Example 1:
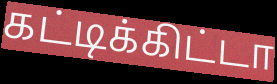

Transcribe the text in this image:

கட்டிக்கிட்டா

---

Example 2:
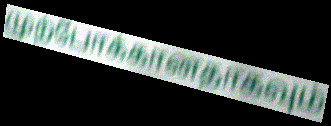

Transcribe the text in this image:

முற்போக்கானதாகவும்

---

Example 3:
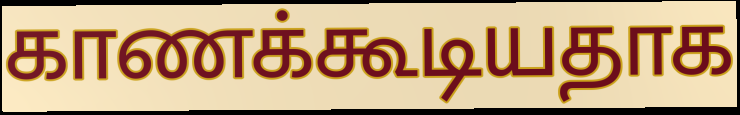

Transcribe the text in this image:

காணக்கூடியதாக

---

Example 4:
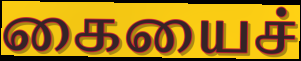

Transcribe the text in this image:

கையைச்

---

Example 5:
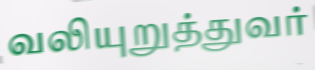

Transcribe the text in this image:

வலியுறுத்துவர்